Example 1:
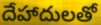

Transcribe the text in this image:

దేహాదులతో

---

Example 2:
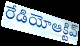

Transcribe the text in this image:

రేడియోఆక్టివ్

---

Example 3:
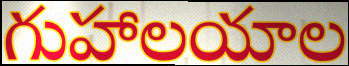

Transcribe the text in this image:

గుహాలయాల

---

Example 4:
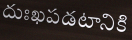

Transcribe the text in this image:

దుఃఖపడటానికి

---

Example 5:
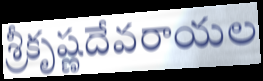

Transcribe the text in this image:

శ్రీకృష్ణదేవరాయల